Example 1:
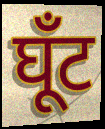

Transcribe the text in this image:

घूँट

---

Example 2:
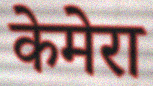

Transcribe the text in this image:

केमेरा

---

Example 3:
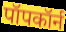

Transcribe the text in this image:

पॉपकॉर्न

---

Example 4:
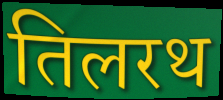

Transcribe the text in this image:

तिलरथ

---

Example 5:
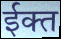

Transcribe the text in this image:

ईक्त